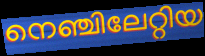
നെഞ്ചിലേറ്റിയ